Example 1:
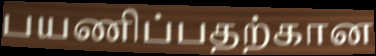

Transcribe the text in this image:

பயணிப்பதற்கான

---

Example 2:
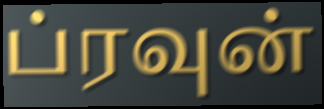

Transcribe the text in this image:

ப்ரவுன்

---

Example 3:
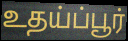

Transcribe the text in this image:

உதய்ப்பூர்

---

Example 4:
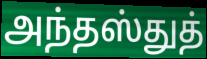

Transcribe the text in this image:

அந்தஸ்துத்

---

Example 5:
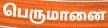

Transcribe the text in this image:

பெருமானை